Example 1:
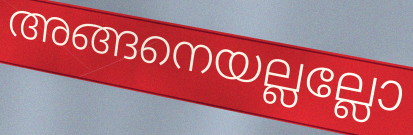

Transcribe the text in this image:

അങ്ങനെയല്ലല്ലോ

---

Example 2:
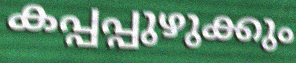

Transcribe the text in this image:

കപ്പപ്പുഴുക്കും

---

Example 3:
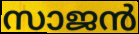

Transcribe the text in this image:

സാജൻ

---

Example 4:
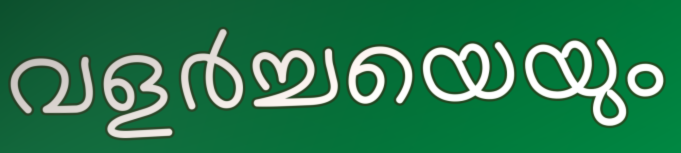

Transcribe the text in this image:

വളർച്ചയെയും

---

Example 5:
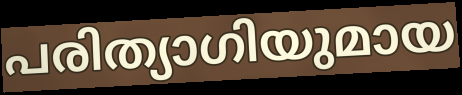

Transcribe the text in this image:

പരിത്യാഗിയുമായ